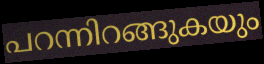
പറന്നിറങ്ങുകയും